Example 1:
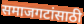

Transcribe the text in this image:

समाजगटांसाठी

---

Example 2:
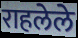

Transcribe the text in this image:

राहलेले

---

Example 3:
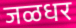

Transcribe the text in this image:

जळधर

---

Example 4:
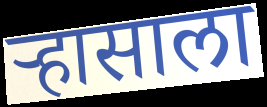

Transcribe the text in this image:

ऱ्हासाला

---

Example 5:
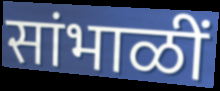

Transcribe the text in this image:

सांभाळीं